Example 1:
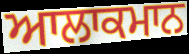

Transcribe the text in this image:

ਆਲਾਕਮਾਨ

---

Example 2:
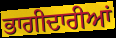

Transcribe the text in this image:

ਭਾਗੀਦਾਰੀਆਂ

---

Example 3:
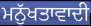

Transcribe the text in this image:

ਮਨੁੱਖਤਾਵਾਦੀ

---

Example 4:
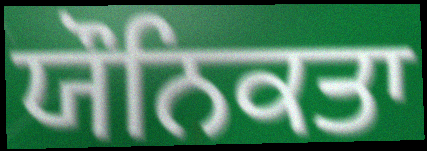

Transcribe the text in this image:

ਯੌਨਿਕਤਾ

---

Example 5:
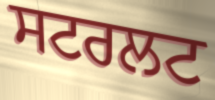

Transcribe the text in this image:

ਸਟਰਲਟ